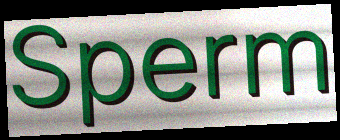
Sperm